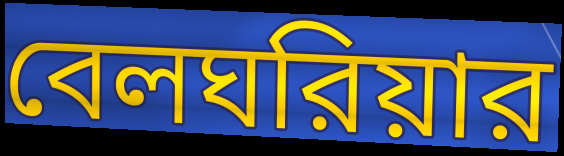
বেলঘরিয়ার